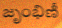
జృంభిణీ